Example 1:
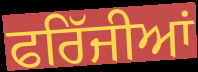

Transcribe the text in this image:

ਫਰਿੱਜੀਆਂ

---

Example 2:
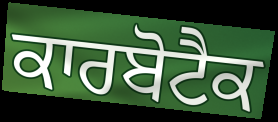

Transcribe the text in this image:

ਕਾਰਬੋਟੈਕ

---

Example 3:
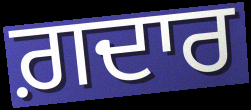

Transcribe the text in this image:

ਗ਼ਦਾਰ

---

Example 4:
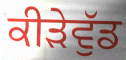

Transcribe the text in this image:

ਕੀੜੇਵੁੱਡ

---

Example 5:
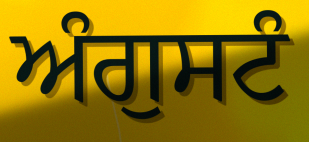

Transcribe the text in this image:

ਅੰਗੁਸਟੰ